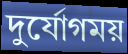
দুর্যোগময়